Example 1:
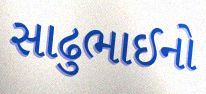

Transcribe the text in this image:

સાઢુભાઈનો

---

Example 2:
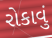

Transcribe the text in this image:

રોકાવું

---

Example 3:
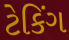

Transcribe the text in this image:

ટેકિંગ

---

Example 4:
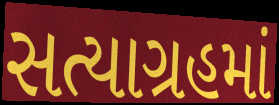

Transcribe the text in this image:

સત્યાગ્રહમાં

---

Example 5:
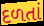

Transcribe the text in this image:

દળતાં